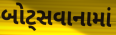
બોટ્સવાનામાં